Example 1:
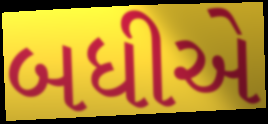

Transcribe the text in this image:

બધીએ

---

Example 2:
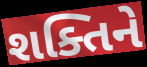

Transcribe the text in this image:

શક્તિને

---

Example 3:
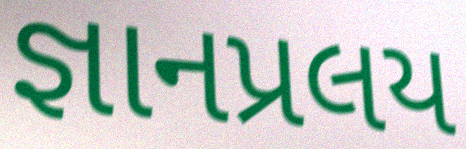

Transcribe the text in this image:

જ્ઞાનપ્રલય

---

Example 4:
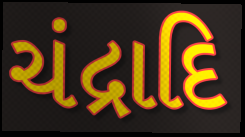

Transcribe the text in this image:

ચંદ્રાદિ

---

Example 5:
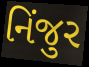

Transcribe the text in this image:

નિંજુર